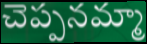
చెప్పనమ్మా